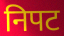
निपट